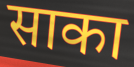
साका